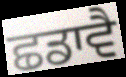
ਛਡਾਵੈ